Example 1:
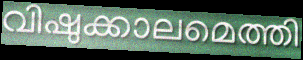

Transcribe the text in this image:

വിഷുക്കാലമെത്തി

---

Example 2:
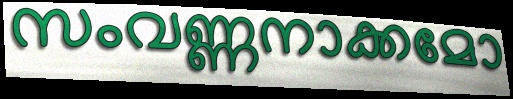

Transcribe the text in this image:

സംവണ്ണനാക്കമോ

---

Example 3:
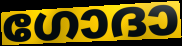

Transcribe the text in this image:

ഗോദാ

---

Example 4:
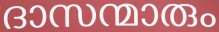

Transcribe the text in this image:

ദാസന്മാരും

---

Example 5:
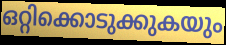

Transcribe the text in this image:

ഒറ്റിക്കൊടുക്കുകയും